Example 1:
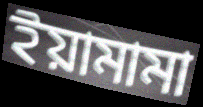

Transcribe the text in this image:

ইয়ামামা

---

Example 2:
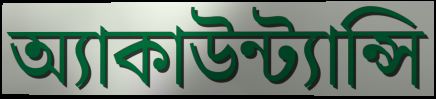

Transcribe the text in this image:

অ্যাকাউন্ট্যান্সি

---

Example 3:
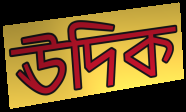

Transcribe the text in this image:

ঊদিক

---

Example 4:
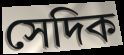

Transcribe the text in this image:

সেদিক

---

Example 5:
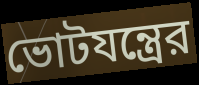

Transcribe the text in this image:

ভোটযন্ত্রের